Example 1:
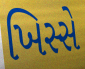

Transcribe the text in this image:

ખિસ્સે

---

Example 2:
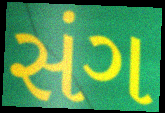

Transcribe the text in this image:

સંગ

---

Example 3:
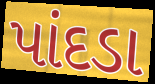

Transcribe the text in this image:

પાંદડા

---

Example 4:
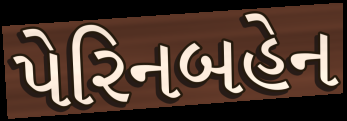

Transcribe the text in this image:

પેરિનબહેન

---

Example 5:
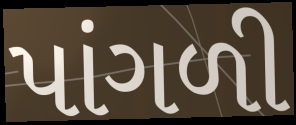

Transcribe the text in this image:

પાંગળી